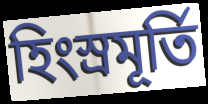
হিংস্রমূর্তি